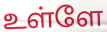
உள்ளே